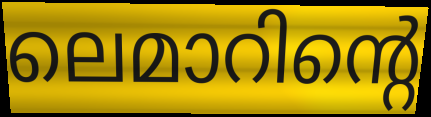
ലെമാറിന്റെ